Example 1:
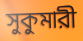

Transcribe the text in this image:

সুকুমারী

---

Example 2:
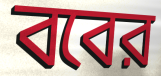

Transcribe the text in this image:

ববের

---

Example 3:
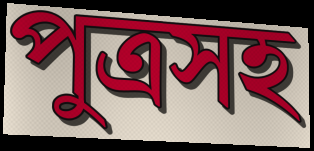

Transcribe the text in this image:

পুত্রসহ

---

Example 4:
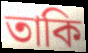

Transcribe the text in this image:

তাকি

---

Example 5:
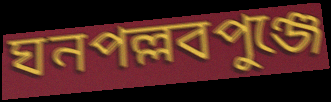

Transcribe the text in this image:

ঘনপল্লবপুঞ্জে